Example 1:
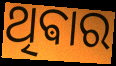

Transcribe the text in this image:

ଥିଵାର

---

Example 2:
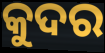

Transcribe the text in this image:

କୁଦର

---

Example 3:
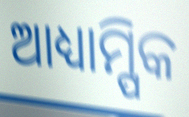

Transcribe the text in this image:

ଆଧ୍ୟାମ୍ପିକ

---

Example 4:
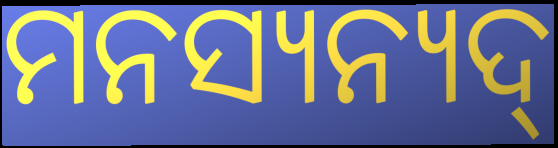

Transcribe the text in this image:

ମନସ୍ୟନ୍ୟଦ୍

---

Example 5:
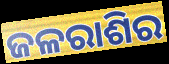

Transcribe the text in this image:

ଜଳରାଶିର